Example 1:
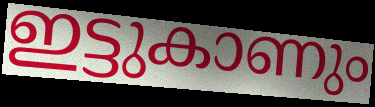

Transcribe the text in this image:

ഇട്ടുകാണും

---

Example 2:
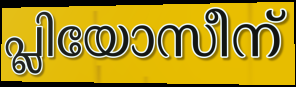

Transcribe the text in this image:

പ്ലിയോസീന്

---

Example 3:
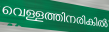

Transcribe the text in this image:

വെള്ളത്തിനരികിൽ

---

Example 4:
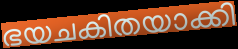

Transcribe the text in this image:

ഭയചകിതയാക്കി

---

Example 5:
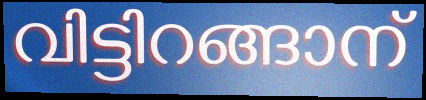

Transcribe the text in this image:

വിട്ടിറങ്ങാന്